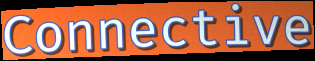
Connective